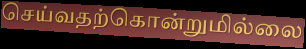
செய்வதற்கொன்றுமில்லை